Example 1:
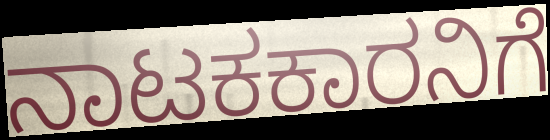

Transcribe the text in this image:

ನಾಟಕಕಾರನಿಗೆ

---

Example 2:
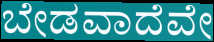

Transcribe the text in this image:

ಬೇಡವಾದೆವೇ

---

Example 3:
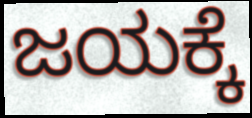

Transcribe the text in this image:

ಜಯಕ್ಕೆ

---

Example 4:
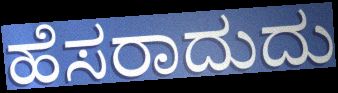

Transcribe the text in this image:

ಹೆಸರಾದುದು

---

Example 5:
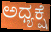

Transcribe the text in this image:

ಅಧ್ಯಕ್ಷೆ